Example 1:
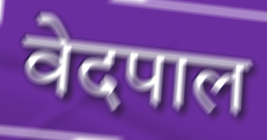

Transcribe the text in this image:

वेदपाल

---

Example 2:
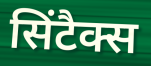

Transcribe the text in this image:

सिंटैक्स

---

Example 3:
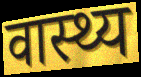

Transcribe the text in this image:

वास्थ्य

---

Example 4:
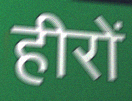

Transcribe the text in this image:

हीरों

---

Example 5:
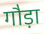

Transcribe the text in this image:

गौड़ा